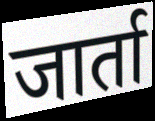
जार्ता